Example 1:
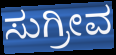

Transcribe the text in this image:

ಸುಗ್ರೀವ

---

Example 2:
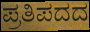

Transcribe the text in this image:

ಪ್ರತಿಪದದ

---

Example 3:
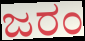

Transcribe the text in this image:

ಜರಂ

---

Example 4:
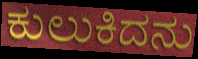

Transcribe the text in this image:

ಕುಲುಕಿದನು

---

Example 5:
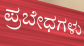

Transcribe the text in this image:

ಪ್ರಬೇಧಗಳು